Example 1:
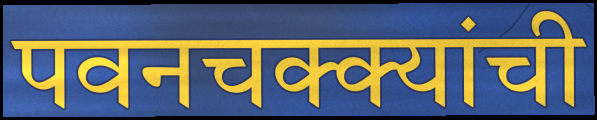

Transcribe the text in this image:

पवनचक्क्यांची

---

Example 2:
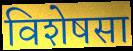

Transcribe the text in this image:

विशेषसा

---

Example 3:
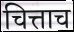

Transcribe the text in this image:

चित्ताच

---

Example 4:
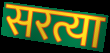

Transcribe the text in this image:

सरत्या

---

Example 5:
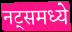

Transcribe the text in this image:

नट्समध्ये